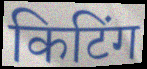
किटिंग